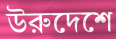
উরুদেশে